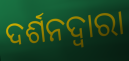
ଦର୍ଶନଦ୍ୱାରା